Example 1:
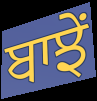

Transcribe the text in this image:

ਬਾਝੇਂ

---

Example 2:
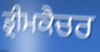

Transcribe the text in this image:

ਡ੍ਰੀਮਕੈਚਰ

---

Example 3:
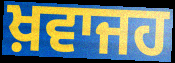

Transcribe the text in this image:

ਖ਼ਵਾਜਹ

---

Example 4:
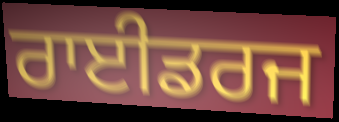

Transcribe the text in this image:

ਰਾਈਡਰਜ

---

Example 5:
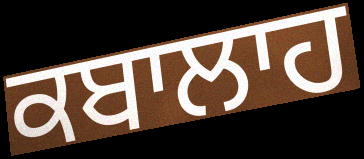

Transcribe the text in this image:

ਕਬਾਲਾਹ